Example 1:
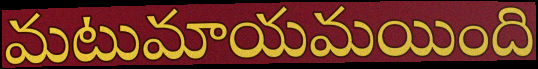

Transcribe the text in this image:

మటుమాయమయింది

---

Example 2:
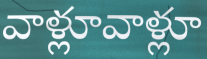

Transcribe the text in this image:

వాళ్లూవాళ్లూ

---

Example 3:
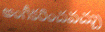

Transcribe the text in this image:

అంగీకరించవచ్చు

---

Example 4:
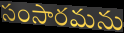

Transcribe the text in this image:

సంసారమను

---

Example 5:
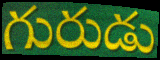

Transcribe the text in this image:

గురుడు